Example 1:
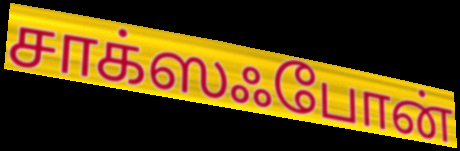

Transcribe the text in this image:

சாக்ஸஃபோன்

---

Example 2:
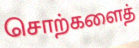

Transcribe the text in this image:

சொற்களைத்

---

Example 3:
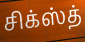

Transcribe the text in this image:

சிக்ஸ்த்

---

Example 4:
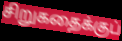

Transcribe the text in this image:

சிறுகதைக்குப்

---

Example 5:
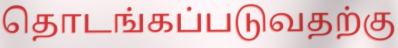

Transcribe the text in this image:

தொடங்கப்படுவதற்கு